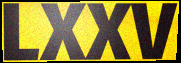
LXXV